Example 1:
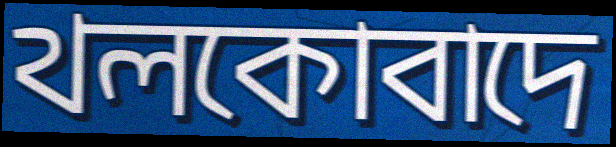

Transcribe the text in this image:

থলকোবাদে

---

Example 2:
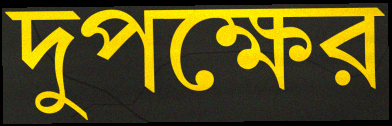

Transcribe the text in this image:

দুপক্ষের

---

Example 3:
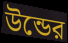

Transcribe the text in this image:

উন্ডের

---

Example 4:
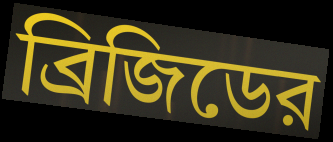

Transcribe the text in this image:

ব্রিজিডের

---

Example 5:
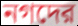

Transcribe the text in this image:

নগদের